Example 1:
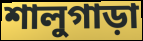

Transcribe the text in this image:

শালুগাড়া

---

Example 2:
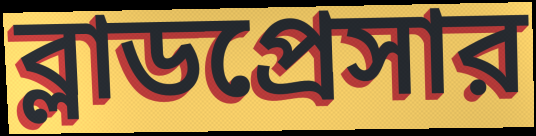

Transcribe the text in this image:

ব্লাডপ্রেসার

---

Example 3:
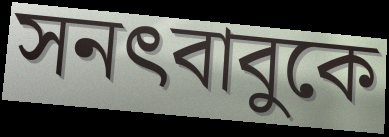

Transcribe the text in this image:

সনৎবাবুকে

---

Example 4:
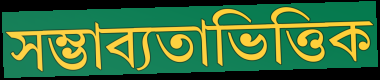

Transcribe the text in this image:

সম্ভাব্যতাভিত্তিক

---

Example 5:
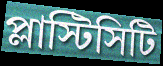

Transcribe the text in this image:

প্লাস্টিসিটি